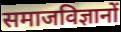
समाजविज्ञानों